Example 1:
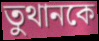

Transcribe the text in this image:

তুথানকে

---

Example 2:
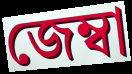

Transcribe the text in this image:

জেম্বা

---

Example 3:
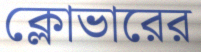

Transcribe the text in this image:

ক্লোভারের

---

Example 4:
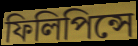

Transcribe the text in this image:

ফিলিপিন্সে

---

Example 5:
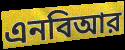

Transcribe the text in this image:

এনবিআর